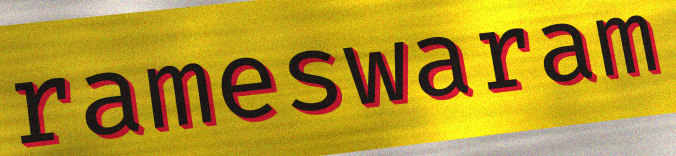
rameswaram